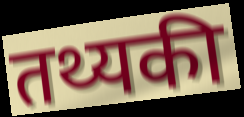
तथ्यकी